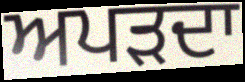
ਅਪੜਦਾ